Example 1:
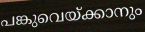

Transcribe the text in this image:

പങ്കുവെയ്ക്കാനും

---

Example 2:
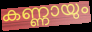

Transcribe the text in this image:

കണ്ണായും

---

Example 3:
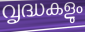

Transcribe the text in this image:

വൃദ്ധകളും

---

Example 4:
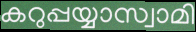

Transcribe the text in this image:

കറുപ്പയ്യാസ്വാമി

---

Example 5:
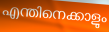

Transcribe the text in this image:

എന്തിനെക്കാളും